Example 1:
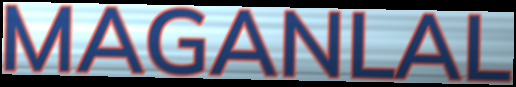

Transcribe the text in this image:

MAGANLAL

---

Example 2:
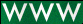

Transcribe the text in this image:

www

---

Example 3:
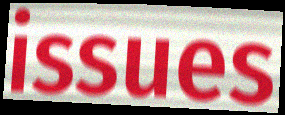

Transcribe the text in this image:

issues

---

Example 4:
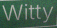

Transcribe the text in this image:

Witty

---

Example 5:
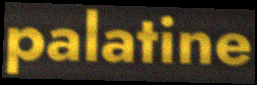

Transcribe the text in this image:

palatine